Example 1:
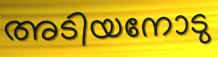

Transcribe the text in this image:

അടിയനോടു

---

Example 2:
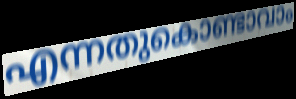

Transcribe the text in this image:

എന്നതുകൊണ്ടാവാം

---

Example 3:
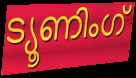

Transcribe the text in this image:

ട്യൂണിംഗ്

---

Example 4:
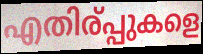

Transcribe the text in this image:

എതിര്പ്പുകളെ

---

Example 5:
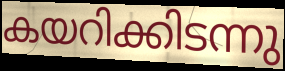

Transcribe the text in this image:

കയറിക്കിടന്നു